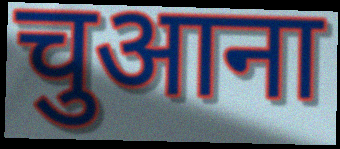
चुआना